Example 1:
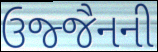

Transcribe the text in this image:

ઉજ્જૈનની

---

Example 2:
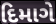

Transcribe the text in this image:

દિમાગે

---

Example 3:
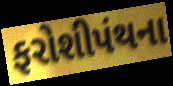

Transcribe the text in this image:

ફરોશીપંથના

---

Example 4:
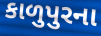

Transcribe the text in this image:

કાળુપુરના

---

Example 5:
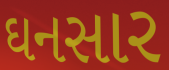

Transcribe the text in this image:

ઘનસાર